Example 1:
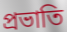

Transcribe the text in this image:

প্রভাতি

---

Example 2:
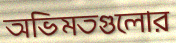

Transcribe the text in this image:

অভিমতগুলোর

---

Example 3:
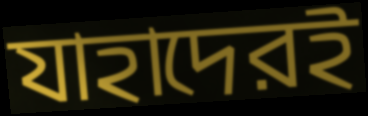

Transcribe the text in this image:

যাহাদেরই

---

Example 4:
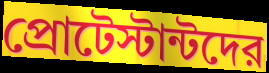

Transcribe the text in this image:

প্রোটেস্টান্টদের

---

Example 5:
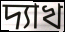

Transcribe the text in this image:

দ্যাখ